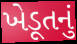
ખેડૂતનું